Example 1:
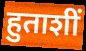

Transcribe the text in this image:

हुताशीं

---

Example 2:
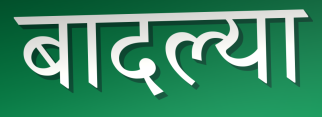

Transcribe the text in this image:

बादल्या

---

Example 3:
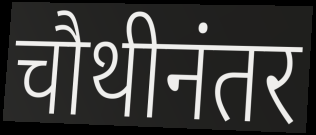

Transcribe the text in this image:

चौथीनंतर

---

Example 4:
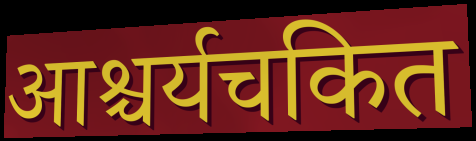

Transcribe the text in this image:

आश्चर्यचकित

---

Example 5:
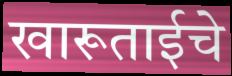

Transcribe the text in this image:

खारूताईचे